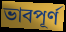
ভাবপূর্ণ